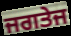
ਜਗਤੇਜ